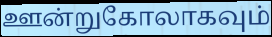
ஊன்றுகோலாகவும்